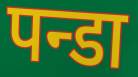
पन्डा